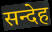
सन्देह